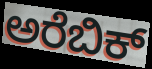
ಅರೆಬಿಕ್